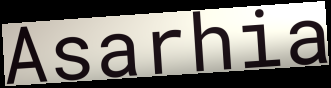
Asarhia